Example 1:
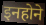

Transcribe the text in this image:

इनहोने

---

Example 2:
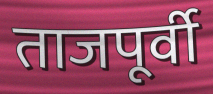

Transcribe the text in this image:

ताजपूर्वी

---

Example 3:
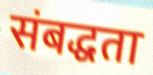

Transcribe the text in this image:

संबद्धता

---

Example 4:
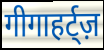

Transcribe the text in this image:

गीगाहर्ट्ज़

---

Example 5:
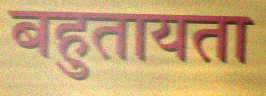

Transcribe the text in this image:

बहुतायता